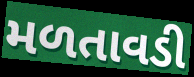
મળતાવડી